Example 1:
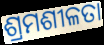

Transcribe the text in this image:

ଶ୍ରମଶୀଳତା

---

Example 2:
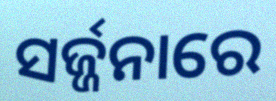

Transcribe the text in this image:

ସର୍ଜ୍ଜନାରେ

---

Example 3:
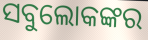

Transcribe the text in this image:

ସବୁଲୋକଙ୍କର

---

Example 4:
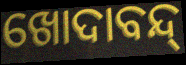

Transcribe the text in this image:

ଖୋଦାବନ୍ଦ୍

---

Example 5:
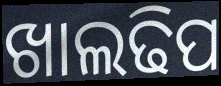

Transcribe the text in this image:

ଖାଲଢିପ